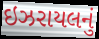
ઇઝરાયલનું